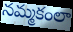
నమ్మకంలా